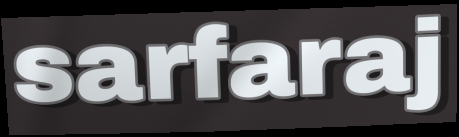
sarfaraj